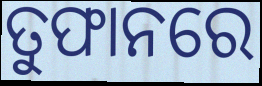
ତୁଫାନରେ